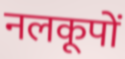
नलकूपों